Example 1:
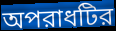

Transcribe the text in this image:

অপরাধটির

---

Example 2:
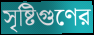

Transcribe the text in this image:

সৃষ্টিগুণের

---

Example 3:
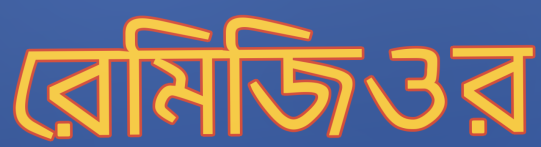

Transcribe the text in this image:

রেমিজিওর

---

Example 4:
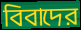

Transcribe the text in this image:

বিবাদের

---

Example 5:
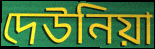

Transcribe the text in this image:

দেউনিয়া